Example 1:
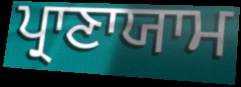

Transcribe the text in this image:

ਪ੍ਰਾਣਾਯਾਮ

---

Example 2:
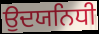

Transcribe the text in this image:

ਉਦਯਨਿਧੀ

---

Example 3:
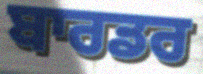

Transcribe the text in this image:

ਬਾਰਡਰ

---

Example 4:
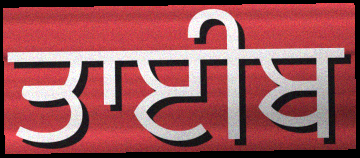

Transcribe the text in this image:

ਤਾਈਬ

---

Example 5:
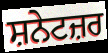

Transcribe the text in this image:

ਸ਼ਨੇਟਜ਼ਰ